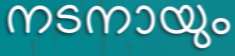
നടനായും